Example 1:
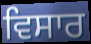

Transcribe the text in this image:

ਵਿਸਾਰ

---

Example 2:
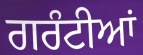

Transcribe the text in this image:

ਗਰੰਟੀਆਂ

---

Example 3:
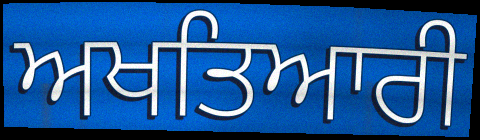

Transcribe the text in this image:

ਅਖਤਿਆਰੀ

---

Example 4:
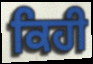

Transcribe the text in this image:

ਕਿਹੀ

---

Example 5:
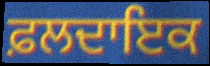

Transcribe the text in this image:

ਫ਼ਲਦਾਇਕ